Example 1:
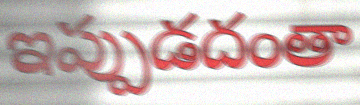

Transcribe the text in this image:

ఇప్పుడదంతా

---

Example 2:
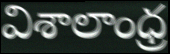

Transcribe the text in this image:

విశాలాంధ్ర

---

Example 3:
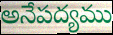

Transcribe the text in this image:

అనేపద్యము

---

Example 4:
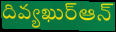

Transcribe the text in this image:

దివ్యఖుర్ఆన్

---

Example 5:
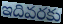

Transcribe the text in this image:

ఇదివరకు